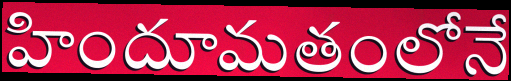
హిందూమతంలోనే